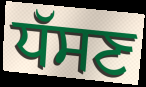
ਧੱਸਣ